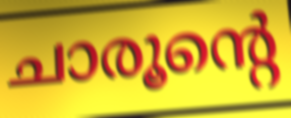
ചാരൂന്റെ